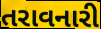
તરાવનારી